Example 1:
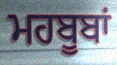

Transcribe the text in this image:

ਮਹਬੂਬਾਂ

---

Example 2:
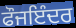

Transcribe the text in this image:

ਫੌਜਇੰਦਰ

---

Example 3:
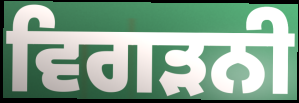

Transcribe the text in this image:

ਵਿਗੜਨੀ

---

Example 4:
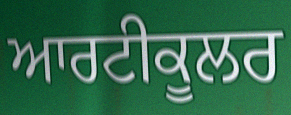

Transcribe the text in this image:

ਆਰਟੀਕੂਲਰ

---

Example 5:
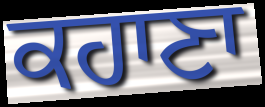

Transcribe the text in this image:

ਕਹਾਣਾ